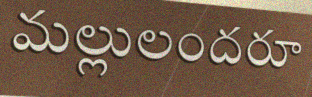
మల్లులందరూ